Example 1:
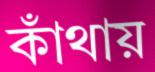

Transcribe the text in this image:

কাঁথায়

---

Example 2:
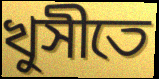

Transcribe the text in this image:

খুসীতে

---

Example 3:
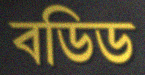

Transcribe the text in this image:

বডিড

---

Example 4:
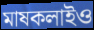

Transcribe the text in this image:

মাষকলাইও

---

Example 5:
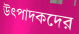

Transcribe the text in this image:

উৎপাদকদের